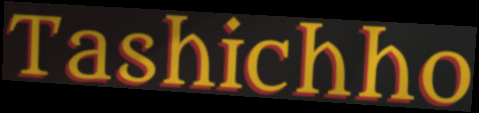
Tashichho